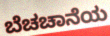
ಬೆಚಚಾನೆಯ